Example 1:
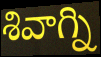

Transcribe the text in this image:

శివాగ్ని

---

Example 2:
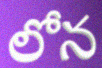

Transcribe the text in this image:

లోన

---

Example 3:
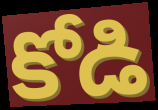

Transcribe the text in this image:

కోడి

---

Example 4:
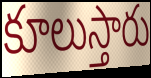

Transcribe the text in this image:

కూలుస్తారు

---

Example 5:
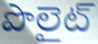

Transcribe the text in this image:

పొలైట్